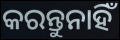
କରନ୍ତୁନାହିଁ